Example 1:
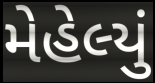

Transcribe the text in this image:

મેહેલ્યું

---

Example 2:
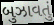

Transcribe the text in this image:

બુઝાવતું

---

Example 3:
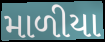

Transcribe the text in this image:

માળીયા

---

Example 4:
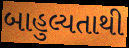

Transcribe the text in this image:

બાહુલ્યતાથી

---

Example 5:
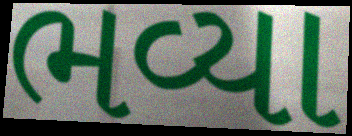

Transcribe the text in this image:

ભવ્યા